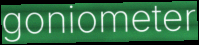
goniometer